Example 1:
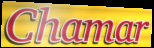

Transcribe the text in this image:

Chamar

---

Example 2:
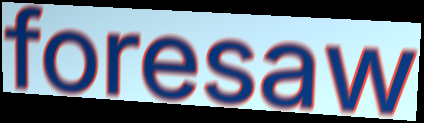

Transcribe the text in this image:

foresaw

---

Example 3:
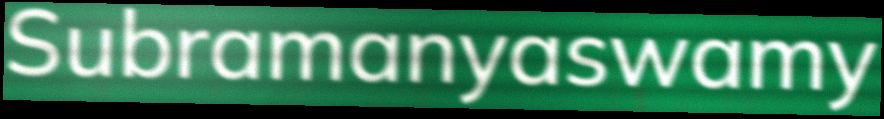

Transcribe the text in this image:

Subramanyaswamy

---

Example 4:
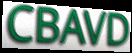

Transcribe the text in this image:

CBAVD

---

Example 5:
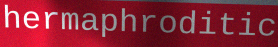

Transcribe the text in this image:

hermaphroditic